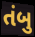
તંબુ